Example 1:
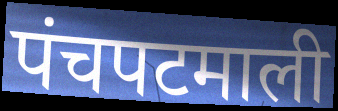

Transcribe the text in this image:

पंचपटमाली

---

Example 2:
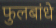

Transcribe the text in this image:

फुलबांधे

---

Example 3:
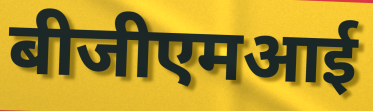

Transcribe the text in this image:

बीजीएमआई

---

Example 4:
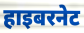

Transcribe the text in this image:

हाइबरनेट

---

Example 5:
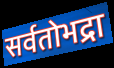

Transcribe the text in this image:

सर्वतोभद्रा